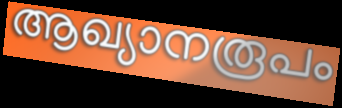
ആഖ്യാനരൂപം